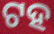
ଟହ